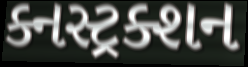
ક્નસ્ટ્રક્શન